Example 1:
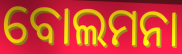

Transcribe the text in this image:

ବୋଲମନା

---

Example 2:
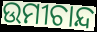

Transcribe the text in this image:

ଉମୀଚାନ୍ଦ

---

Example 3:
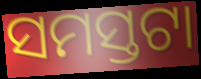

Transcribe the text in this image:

ସମସ୍ତଟା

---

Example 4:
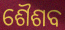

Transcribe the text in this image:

ଶୈଶବ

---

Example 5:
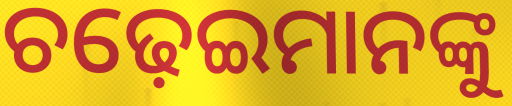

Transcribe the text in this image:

ଚଢ଼େଇମାନଙ୍କୁ